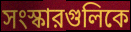
সংস্কারগুলিকে